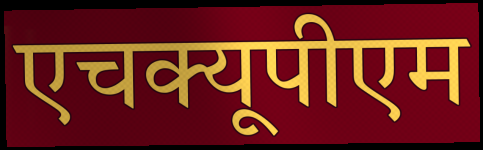
एचक्यूपीएम